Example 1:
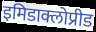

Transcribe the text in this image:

इमिडाक्लोप्रीड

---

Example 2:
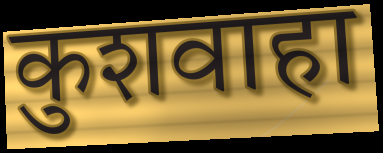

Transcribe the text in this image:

कुशवाहा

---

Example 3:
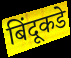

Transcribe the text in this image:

बिंदूकडे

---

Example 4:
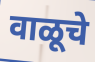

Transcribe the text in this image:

वाळूचे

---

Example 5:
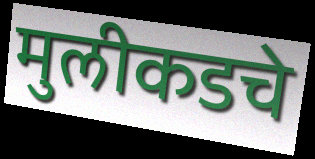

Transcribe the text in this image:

मुलीकडचे